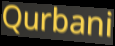
Qurbani